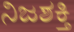
ನಿಜಶಕ್ತಿ